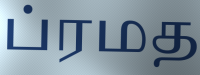
ப்ரமத